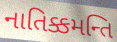
નાતિક્કમન્તિ